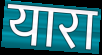
यारा